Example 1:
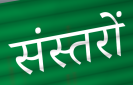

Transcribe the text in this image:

संस्तरों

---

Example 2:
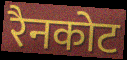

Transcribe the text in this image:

रैनकोट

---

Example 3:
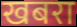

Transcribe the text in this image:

खबरा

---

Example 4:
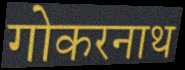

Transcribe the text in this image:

गोकरनाथ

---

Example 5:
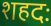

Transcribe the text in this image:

शहदः